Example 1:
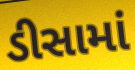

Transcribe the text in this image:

ડીસામાં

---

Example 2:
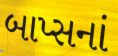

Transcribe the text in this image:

બાપ્સનાં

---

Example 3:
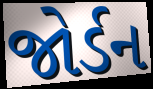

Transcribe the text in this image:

જોર્ડન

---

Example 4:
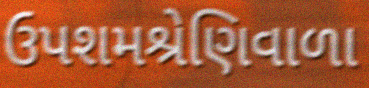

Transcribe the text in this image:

ઉપશમશ્રેણિવાળા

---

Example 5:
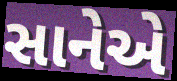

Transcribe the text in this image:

સાનેએ